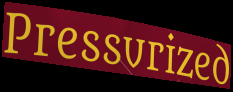
Pressurized